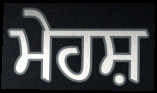
ਮੇਹਸ਼